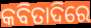
କବିତାଦିରେ